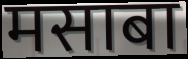
मसाबा